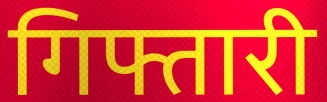
गिफ्तारी